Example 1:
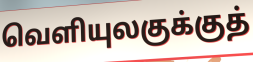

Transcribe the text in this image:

வெளியுலகுக்குத்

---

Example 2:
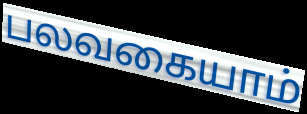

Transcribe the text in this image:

பலவகையாம்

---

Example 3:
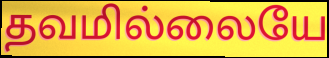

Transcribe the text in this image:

தவமில்லையே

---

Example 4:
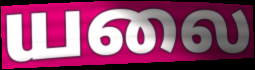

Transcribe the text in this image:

யலை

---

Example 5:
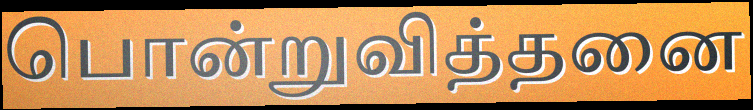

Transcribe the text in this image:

பொன்றுவித்தனை